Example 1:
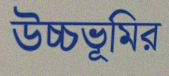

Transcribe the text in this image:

উচ্চভূমির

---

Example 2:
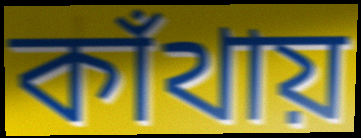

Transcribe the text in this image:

কাঁথায়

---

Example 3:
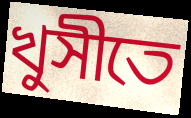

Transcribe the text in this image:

খুসীতে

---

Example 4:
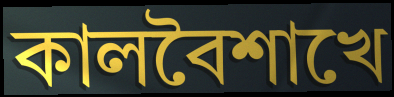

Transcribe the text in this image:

কালবৈশাখে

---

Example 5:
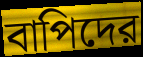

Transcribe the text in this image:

বাপিদের